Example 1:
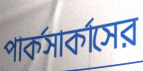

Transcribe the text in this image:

পার্কসার্কাসের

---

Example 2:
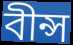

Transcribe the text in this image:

বীন্স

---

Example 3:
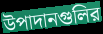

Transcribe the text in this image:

উপাদানগুলির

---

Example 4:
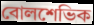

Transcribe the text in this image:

বোলশেভিক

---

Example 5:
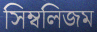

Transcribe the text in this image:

সিম্বলিজম